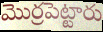
మొర్రపెట్టారు